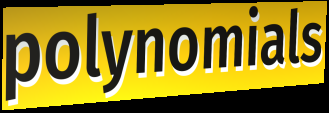
polynomials